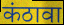
कंठावा